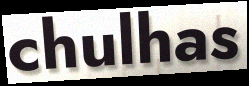
chulhas